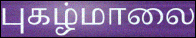
புகழ்மாலை